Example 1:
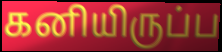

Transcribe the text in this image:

கனியிருப்ப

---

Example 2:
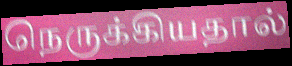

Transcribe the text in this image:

நெருக்கியதால்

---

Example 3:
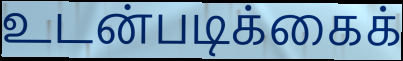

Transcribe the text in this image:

உடன்படிக்கைக்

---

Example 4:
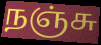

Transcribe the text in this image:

நஞ்சு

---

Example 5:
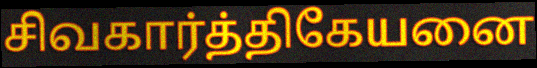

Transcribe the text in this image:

சிவகார்த்திகேயனை